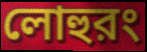
লোহুরং